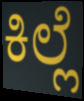
ಕಿಲ್ಲೆ